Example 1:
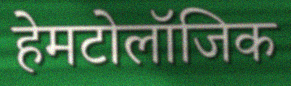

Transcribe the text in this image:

हेमटोलॉजिक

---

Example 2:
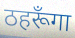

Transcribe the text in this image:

ठहरूँगा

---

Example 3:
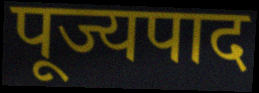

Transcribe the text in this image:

पूज्यपाद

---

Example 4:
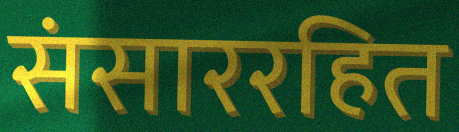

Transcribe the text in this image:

संसाररहित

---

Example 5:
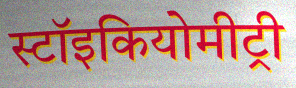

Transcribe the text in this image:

स्टॉइकियोमीट्री